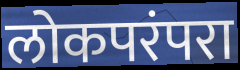
लोकपरंपरा